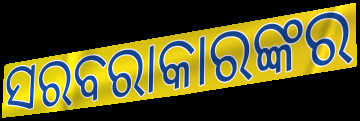
ସରବରାକାରଙ୍କର